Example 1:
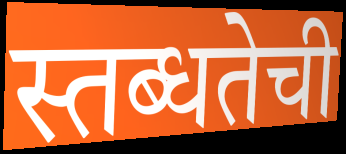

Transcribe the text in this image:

स्तब्धतेची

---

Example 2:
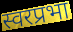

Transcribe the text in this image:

स्वरप्रभा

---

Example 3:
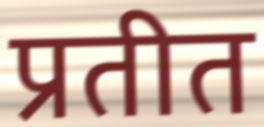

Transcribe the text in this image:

प्रतीत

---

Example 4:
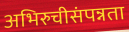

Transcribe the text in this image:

अभिरुचीसंपन्नता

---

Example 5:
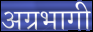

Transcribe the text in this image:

अग्रभागी